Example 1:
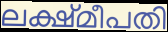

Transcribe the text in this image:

ലക്ഷ്മീപതി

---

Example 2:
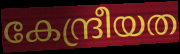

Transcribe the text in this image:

കേന്ദ്രീയത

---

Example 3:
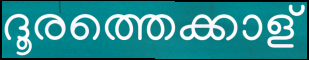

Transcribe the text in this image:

ദൂരത്തെക്കാള്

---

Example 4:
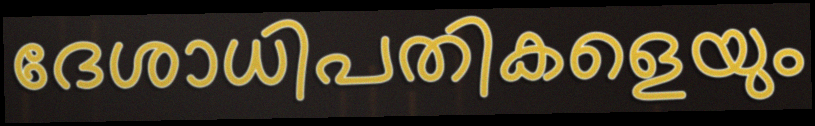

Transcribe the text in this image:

ദേശാധിപതികളെയും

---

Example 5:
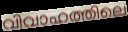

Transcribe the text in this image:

വിവാഹത്തിലെ